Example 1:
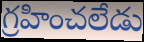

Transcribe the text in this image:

గ్రహించలేడు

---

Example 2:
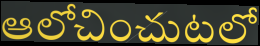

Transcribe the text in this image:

ఆలోచించుటలో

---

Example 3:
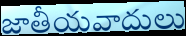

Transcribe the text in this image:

జాతీయవాదులు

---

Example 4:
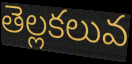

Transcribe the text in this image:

తెల్లకలువ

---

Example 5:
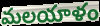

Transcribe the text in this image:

మలయాళం